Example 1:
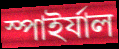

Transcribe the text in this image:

স্পাইর্যাল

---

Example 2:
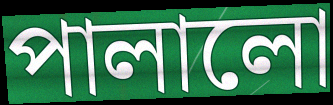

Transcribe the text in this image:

পালালো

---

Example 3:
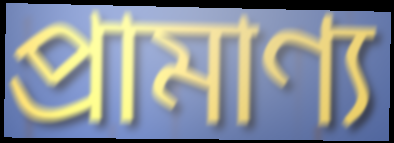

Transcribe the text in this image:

প্রামাণ্য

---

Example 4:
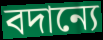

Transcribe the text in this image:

বদান্যে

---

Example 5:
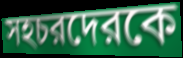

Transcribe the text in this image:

সহচরদেরকে